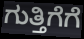
ಗುತ್ತಿಗೆಗೆ